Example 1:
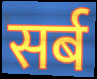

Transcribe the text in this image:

सर्ब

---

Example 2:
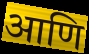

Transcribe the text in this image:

आणि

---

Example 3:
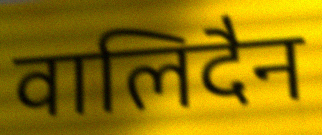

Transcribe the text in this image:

वालिदैन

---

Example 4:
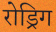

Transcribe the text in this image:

रोड्रिग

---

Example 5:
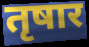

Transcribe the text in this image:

तृषार